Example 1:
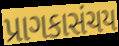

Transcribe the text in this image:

પ્રાગકાસંચય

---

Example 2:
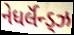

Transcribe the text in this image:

નેધર્લૅન્ડ્ઝ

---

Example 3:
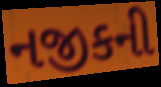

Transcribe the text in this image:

નજીકની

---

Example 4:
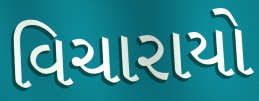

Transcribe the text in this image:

વિચારાયો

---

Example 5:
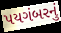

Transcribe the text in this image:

પયગંબરનું